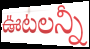
ఊటలన్నీ